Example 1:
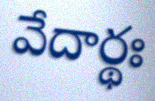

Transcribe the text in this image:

వేదార్థః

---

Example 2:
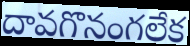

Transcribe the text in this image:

దావగొనంగలేక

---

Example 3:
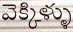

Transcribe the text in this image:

వెక్కిళ్ళు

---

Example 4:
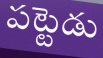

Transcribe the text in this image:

పట్టెడు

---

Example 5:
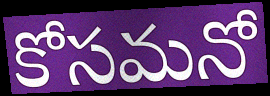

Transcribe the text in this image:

కోసమనో